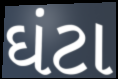
ઘંટા